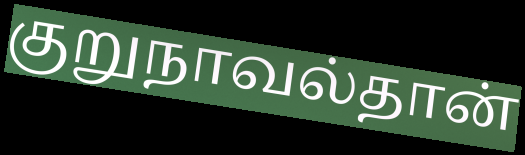
குறுநாவல்தான்